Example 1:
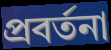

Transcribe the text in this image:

প্রবর্তনা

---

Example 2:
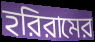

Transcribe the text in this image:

হরিরামের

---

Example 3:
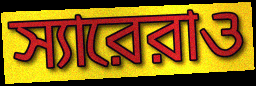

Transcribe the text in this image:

স্যারেরাও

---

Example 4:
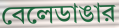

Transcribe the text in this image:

বেলেডাঙার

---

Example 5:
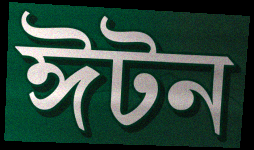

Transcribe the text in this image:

ঈটন